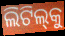
ଲିଟିଲ୍‌କୁ